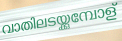
വാതിലടയ്ക്കുമ്പോള്